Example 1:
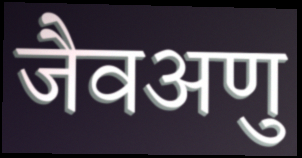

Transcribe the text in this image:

जैवअणु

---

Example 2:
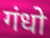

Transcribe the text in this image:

गंधो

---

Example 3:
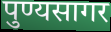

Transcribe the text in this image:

पुण्यसागर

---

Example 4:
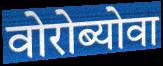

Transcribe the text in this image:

वोरोब्योवा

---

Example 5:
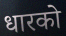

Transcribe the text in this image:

धारको